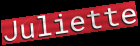
Juliette